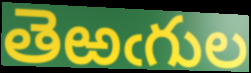
తెఱఁగుల